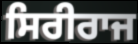
ਸਿਰੀਰਾਜ